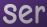
ser